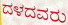
ದಳದವರು